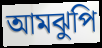
আমঝুপি